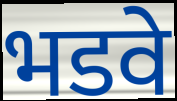
भडवे